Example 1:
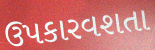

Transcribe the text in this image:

ઉપકારવશતા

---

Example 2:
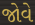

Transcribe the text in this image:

જોવે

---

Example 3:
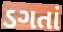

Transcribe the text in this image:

ડગતાં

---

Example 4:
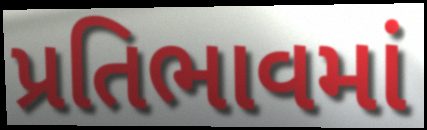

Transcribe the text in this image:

પ્રતિભાવમાં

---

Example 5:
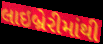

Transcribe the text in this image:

લાઇબ્રેરીમાંથી